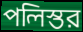
পলিস্তর